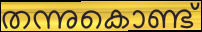
തന്നുകൊണ്ട്